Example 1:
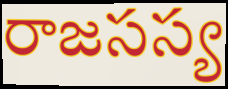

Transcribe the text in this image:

రాజసస్య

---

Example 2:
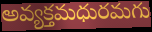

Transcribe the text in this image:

అవ్యక్తమధురమగు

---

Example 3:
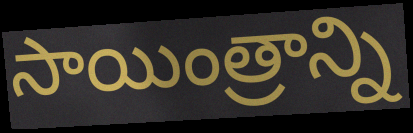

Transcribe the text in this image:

సాయింత్రాన్ని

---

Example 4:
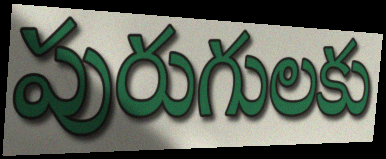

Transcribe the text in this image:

పురుగులకు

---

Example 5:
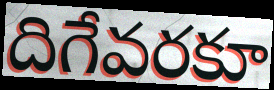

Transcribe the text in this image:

దిగేవరకూ